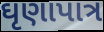
ઘૃણાપાત્ર